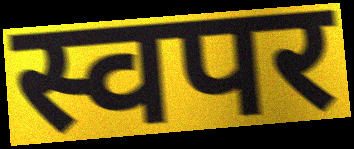
स्वपर